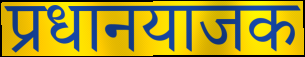
प्रधानयाजक